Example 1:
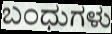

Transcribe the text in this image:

ಬಂಧುಗಳು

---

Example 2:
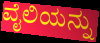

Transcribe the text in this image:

ವೈಲಿಯನ್ನು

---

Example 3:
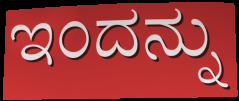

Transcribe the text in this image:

ಇಂದನ್ನು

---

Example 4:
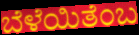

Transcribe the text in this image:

ಬೆಳೆಯಿತೆಂಬ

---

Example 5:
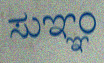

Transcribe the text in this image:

ಸುಞ್ಞಂ